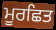
ਮੂਰਛਿਤ